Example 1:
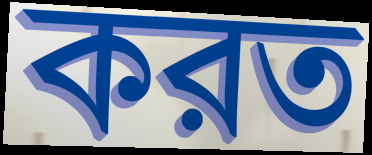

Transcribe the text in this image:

করত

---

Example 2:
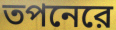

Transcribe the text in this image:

তপনেরে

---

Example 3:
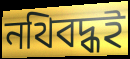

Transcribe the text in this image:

নথিবদ্ধই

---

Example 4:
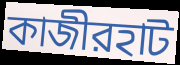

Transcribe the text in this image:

কাজীরহাট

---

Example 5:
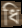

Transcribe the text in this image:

ধি